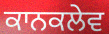
ਕਾਨਕਲੇਵ